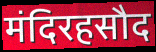
मंदिरहसौद